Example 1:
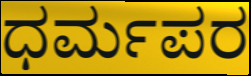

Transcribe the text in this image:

ಧರ್ಮಪರ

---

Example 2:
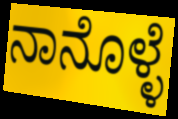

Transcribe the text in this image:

ನಾನೊಳ್ಳೆ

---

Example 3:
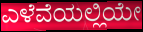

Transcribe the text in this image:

ಎಳೆವೆಯಲ್ಲಿಯೇ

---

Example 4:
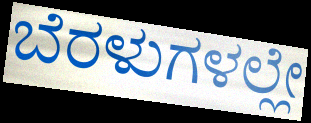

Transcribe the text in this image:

ಬೆರಳುಗಳಲ್ಲೇ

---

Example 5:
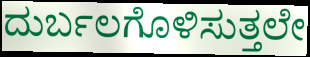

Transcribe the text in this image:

ದುರ್ಬಲಗೊಳಿಸುತ್ತಲೇ